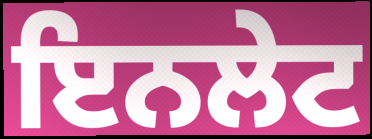
ਇਨਲੇਟ